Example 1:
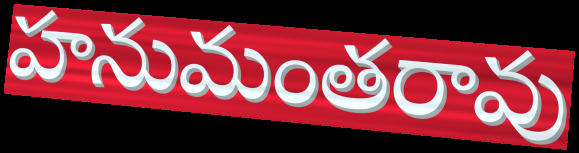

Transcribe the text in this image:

హనుమంతరావు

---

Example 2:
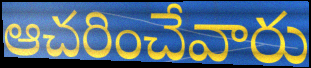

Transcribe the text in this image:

ఆచరించేవారు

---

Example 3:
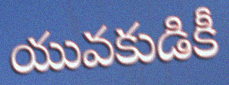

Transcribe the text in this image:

యువకుడికీ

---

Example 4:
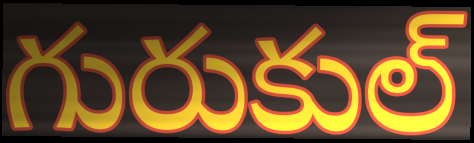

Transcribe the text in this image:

గురుకుల్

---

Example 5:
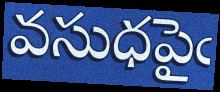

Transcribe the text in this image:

వసుధపైఁ